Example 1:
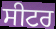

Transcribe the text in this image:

ਸੀਟਰ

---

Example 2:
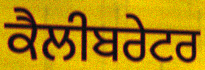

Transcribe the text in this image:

ਕੈਲੀਬਰੇਟਰ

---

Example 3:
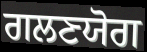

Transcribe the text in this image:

ਗਲਣਯੋਗ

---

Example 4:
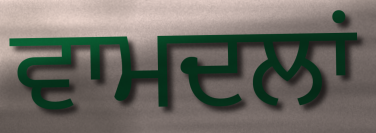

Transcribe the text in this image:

ਵਾਮਦਲਾਂ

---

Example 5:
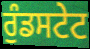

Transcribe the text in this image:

ਰੁੰਡਸਟੇਟ